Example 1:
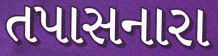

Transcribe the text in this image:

તપાસનારા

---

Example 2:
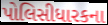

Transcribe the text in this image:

પોલિસીધારકના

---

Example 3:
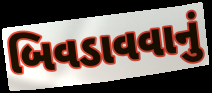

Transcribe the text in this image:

બિવડાવવાનું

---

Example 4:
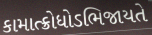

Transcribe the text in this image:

કામાત્ક્રોધોઽભિજાયતે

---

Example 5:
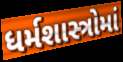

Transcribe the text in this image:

ધર્મશાસ્ત્રોમાં